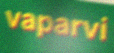
vaparvi